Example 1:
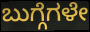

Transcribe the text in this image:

ಬುಗ್ಗೆಗಳೇ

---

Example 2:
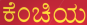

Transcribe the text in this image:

ಕೆಂಚಿಯ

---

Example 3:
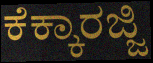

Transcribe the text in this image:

ಕೆಕ್ಕಾರಜ್ಜಿ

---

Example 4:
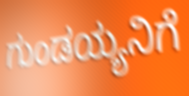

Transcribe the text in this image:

ಗುಂಡಯ್ಯನಿಗೆ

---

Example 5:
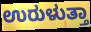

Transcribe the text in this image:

ಉರುಳುತ್ತಾ